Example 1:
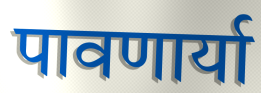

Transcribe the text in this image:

पावणार्या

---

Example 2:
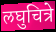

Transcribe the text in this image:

लघुचित्रे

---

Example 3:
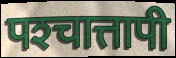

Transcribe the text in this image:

पश्‍चात्तापी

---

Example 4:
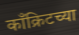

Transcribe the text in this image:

काँक्रिटच्या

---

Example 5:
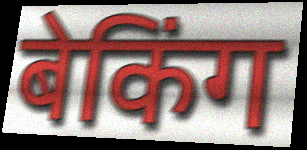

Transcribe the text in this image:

बेकिंग